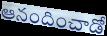
ఆనందించాడో